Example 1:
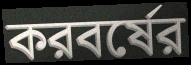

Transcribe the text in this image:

করবর্ষের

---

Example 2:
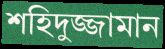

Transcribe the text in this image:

শহিদুজ্জামান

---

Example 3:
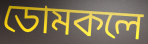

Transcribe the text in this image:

ডোমকলে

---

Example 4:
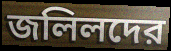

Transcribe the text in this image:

জলিলদের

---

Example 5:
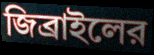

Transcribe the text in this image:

জিব্রাইলের